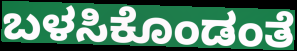
ಬಳಸಿಕೊಂಡಂತೆ